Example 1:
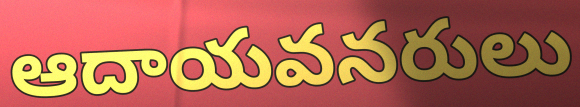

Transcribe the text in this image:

ఆదాయవనరులు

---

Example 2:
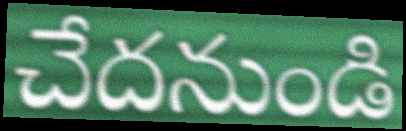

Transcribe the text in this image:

చేదనుండి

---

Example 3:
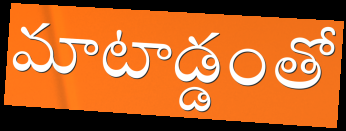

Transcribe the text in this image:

మాటాడ్డంతో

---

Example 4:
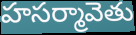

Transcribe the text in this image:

హసర్మావెతు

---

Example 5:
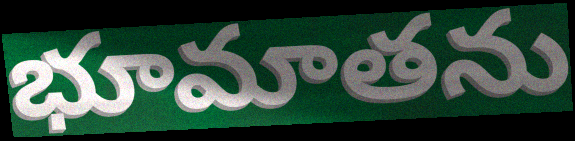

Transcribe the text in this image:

భూమాతను